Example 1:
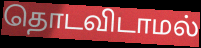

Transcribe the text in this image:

தொடவிடாமல்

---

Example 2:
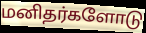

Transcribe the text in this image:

மனிதர்களோடு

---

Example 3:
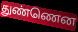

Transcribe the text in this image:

துண்ணென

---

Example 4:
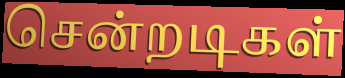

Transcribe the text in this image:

சென்றடிகள்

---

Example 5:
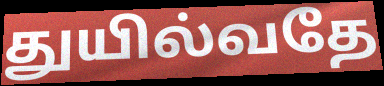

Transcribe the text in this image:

துயில்வதே